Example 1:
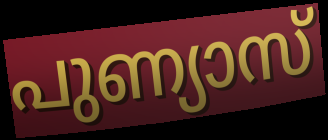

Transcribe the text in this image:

പുണ്യാസ്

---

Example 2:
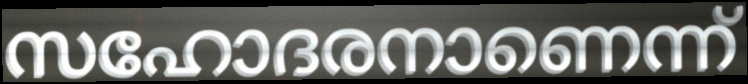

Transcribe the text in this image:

സഹോദരനാണെന്ന്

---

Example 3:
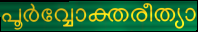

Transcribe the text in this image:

പൂർവ്വോക്തരീത്യാ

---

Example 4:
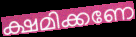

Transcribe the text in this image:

ക്ഷമിക്കണേ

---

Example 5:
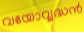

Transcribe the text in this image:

വയോവൃദ്ധൻ